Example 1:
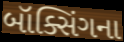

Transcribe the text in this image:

બૉક્સિંગના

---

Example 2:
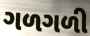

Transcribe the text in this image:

ગળગળી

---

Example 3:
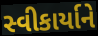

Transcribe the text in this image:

સ્વીકાર્યાને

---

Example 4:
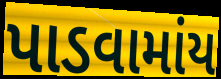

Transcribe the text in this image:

પાડવામાંય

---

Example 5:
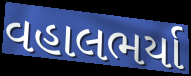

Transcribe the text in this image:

વહાલભર્યા